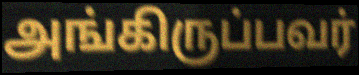
அங்கிருப்பவர்